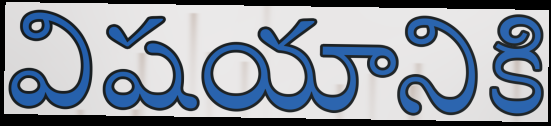
విషయానికి